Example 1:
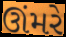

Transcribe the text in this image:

ઊંમરે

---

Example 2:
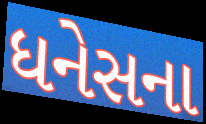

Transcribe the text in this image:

ધનેસના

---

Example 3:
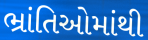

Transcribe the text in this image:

ભ્રાંતિઓમાંથી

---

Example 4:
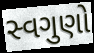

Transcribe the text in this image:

સ્વગુણો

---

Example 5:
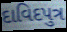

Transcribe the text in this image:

દાવિદપુત્ર